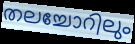
തലച്ചോറിലും